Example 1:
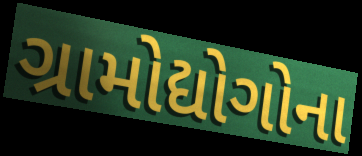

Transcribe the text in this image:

ગ્રામોદ્યોગોના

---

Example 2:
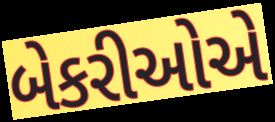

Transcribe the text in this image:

બેકરીઓએ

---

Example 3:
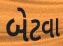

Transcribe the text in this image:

બેટવા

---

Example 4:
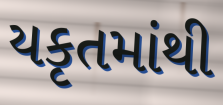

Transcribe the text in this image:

યકૃતમાંથી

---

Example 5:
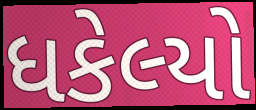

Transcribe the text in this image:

ધકેલ્યો